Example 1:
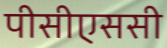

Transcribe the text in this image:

पीसीएससी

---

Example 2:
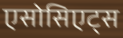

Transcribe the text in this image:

एसोसिएट्स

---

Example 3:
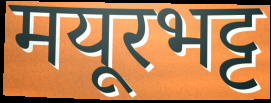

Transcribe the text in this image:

मयूरभट्ट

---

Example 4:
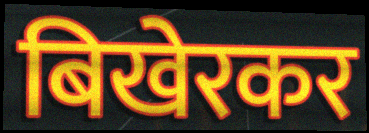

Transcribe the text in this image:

बिखेरकर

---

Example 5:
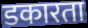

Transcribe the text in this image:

डकारता